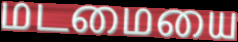
மடமையை